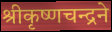
श्रीकृष्णचन्द्रने